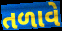
તળાવે